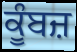
ਕੂੰਬਜ਼